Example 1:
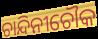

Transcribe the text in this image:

ଚାନ୍ଦିନୀଚୌକ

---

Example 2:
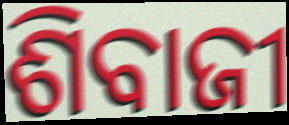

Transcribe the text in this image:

ଶିବାଜୀ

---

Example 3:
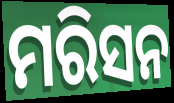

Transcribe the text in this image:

ମରିସନ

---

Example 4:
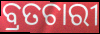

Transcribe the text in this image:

ବ୍ରତଚାରୀ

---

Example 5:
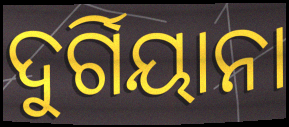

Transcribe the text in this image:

ଦୁର୍ଗିୟାନା